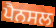
ਪੈਨਸਲ